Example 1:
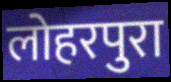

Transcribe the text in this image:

लोहरपुरा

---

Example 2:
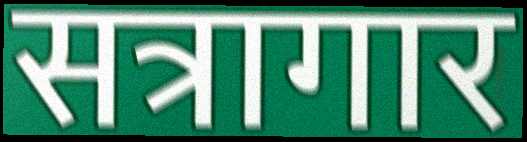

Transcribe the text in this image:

सत्रागार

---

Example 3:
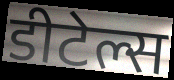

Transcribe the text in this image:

डीटेल्‍स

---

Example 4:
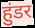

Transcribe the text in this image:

हुंडर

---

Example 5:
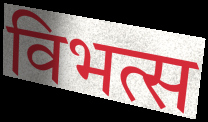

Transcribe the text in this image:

विभत्स